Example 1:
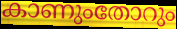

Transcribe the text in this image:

കാണുംതോറും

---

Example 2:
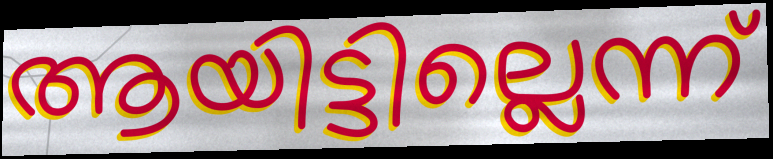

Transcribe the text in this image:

ആയിട്ടില്ലെന്ന്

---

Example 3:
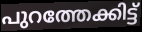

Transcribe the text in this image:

പുറത്തേക്കിട്ട്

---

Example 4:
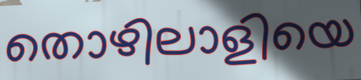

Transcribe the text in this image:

തൊഴിലാളിയെ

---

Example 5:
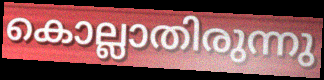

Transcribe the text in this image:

കൊല്ലാതിരുന്നു